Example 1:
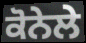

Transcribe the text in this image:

ਕੋਨੇਲੇ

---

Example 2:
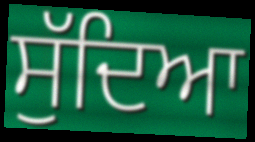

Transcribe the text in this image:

ਸੁੱਦਿਆ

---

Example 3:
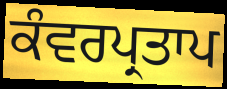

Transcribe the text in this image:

ਕੰਵਰਪ੍ਰਤਾਪ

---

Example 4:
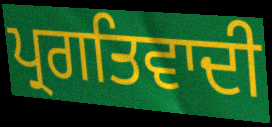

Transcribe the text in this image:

ਪ੍ਰਗਤਿਵਾਦੀ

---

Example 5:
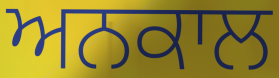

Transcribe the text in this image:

ਅਨਕਾਲ